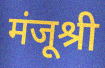
मंजूश्री